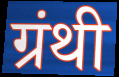
ग्रंथी